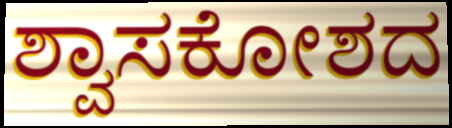
ಶ್ವಾಸಕೋಶದ